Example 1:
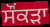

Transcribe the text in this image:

ਸੌਂਕੜਾ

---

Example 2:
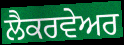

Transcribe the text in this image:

ਲੈਕਰਵੇਅਰ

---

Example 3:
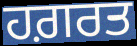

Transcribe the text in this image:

ਹਗ਼ਰਤ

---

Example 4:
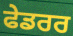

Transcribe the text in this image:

ਫੇਡਰਰ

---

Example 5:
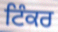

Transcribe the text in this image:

ਟਿੰਕਰ